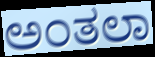
ಅಂತಲಾ